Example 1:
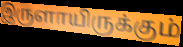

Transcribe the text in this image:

இருளாயிருக்கும்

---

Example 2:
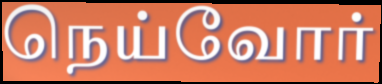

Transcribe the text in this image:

நெய்வோர்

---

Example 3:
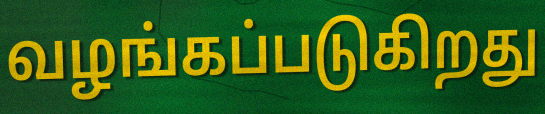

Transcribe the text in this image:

வழங்கப்படுகிறது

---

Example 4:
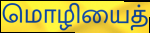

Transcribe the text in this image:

மொழியைத்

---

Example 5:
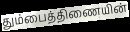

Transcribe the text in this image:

தும்பைத்திணையின்